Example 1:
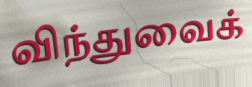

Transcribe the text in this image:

விந்துவைக்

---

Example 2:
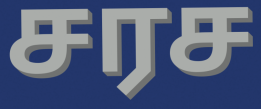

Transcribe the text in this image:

சரச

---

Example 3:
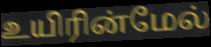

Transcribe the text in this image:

உயிரின்மேல்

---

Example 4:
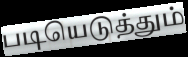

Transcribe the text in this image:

படியெடுத்தும்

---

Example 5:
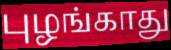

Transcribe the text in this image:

புழங்காது